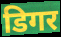
डिगर